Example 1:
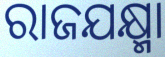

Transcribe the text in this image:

ରାଜଯକ୍ଷ୍ମା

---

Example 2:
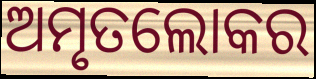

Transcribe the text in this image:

ଅମୃତଲୋକର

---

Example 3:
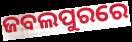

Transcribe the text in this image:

ଜବଲପୁରରେ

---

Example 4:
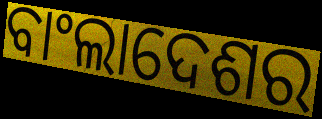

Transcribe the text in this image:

ବାଂଲାଦେଶର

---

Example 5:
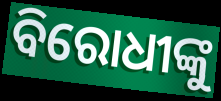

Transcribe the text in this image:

ବିରୋଧୀଙ୍କୁ